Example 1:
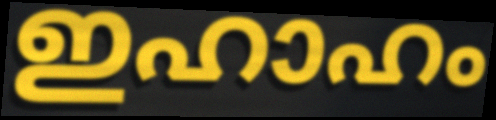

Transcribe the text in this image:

ഇഹാഹം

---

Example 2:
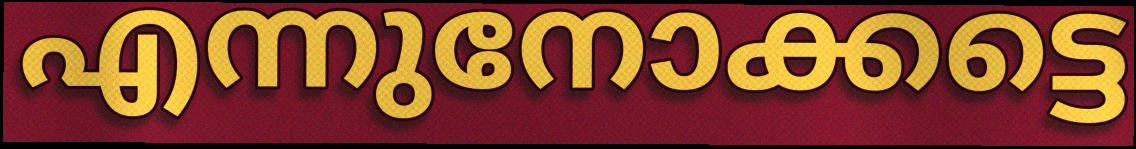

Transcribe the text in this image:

എന്നുനോക്കട്ടെ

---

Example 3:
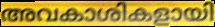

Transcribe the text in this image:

അവകാശികളായി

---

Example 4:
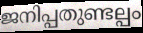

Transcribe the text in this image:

ജനിപ്പതുണ്ടല്പം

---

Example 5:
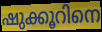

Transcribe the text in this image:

ഷുക്കൂറിനെ